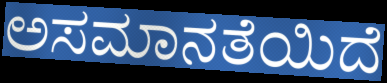
ಅಸಮಾನತೆಯಿದೆ